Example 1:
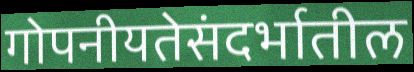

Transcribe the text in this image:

गोपनीयतेसंदर्भातील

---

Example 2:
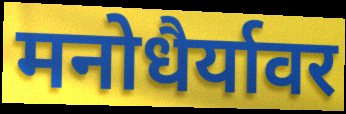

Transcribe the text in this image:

मनोधैर्यावर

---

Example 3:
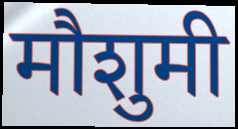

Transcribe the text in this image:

मौशुमी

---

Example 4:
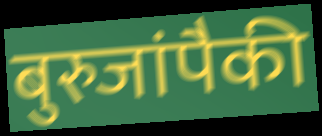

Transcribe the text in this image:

बुरुजांपैकी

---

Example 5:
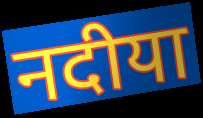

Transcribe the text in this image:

नदीया